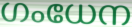
ഗംധേന